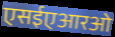
एसईएआरओ